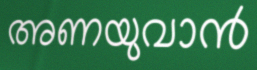
അണയുവാൻ